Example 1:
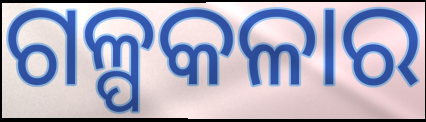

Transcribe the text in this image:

ଗଳ୍ପକଳାର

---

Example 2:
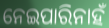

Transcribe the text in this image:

ନେଇପାରିନାହଁ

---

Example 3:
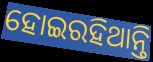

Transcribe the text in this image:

ହୋଇରହିଥାନ୍ତି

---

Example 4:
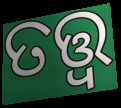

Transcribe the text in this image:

ତତ୍ତ୍ବ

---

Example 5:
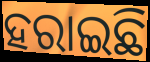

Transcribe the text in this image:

ହରାଇଛି